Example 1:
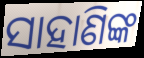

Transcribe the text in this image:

ସାହାଣିଙ୍କ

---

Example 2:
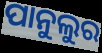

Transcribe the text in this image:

ପାନୁଲୁର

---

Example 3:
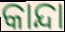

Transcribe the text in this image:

କାନ୍ଦା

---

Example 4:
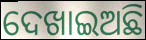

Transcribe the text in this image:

ଦେଖାଇଅଛି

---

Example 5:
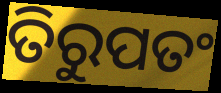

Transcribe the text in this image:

ତିରୁପତଂ